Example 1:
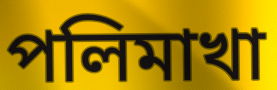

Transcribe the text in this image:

পলিমাখা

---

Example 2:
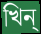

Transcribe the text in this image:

খিন্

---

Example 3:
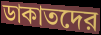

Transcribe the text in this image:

ডাকাতদের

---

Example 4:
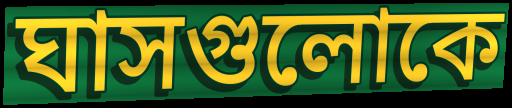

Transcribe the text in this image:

ঘাসগুলোকে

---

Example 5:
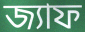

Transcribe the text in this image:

জ্যাফ